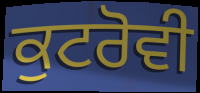
ਕੁਟਰੋਵੀ